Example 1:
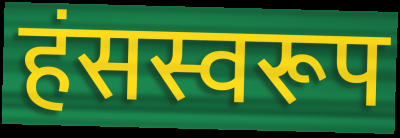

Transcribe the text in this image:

हंसस्वरूप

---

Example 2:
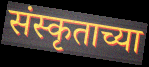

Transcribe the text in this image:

संस्कृताच्या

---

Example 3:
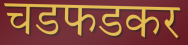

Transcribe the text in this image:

चडफडकर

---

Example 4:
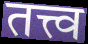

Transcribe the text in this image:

तत्त्व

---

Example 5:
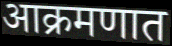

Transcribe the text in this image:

आक्रमणात